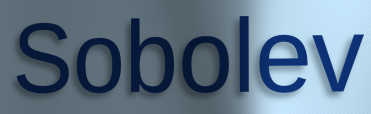
Sobolev